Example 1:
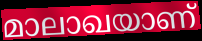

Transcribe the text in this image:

മാലാഖയാണ്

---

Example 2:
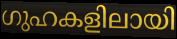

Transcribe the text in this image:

ഗുഹകളിലായി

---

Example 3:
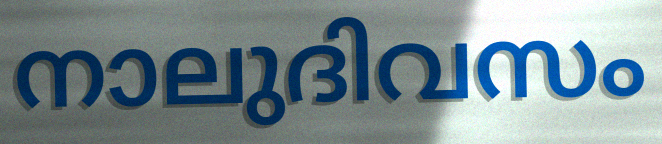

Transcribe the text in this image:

നാലുദിവസം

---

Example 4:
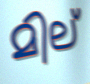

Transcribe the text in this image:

മില്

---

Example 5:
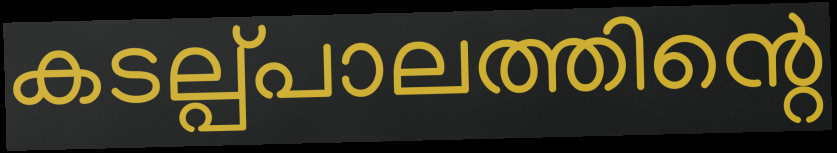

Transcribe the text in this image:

കടല്പ്പാലത്തിന്റെ